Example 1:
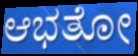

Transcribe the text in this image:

ಆಭತೋ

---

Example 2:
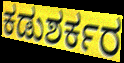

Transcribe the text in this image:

ಕಡುಶರ್ಕರ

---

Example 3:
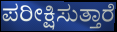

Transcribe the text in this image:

ಪರೀಕ್ಷಿಸುತ್ತಾರೆ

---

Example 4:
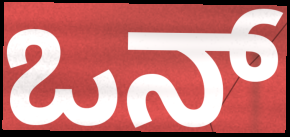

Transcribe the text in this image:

ಒನ್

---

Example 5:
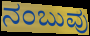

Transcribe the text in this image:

ನಂಬುವು